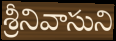
శ్రీనివాసుని